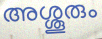
അശ്ശൂരും